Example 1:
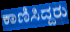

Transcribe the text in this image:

ಕಾಣಿಸಿದ್ದರು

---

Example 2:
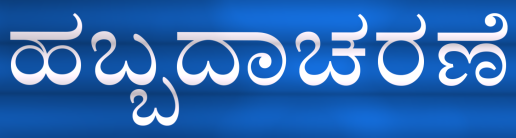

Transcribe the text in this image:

ಹಬ್ಬದಾಚರಣೆ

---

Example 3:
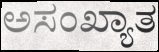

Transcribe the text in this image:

ಅಸಂಖ್ಯಾತ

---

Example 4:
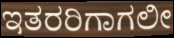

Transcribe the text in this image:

ಇತರರಿಗಾಗಲೀ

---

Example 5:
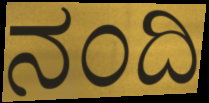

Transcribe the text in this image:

ನಂದಿ